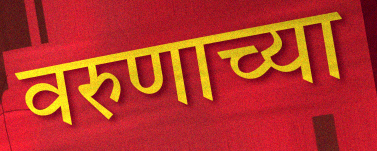
वरुणाच्या